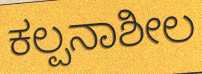
ಕಲ್ಪನಾಶೀಲ